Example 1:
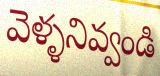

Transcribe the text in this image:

వెళ్ళనివ్వండి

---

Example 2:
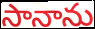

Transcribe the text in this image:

సానాను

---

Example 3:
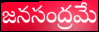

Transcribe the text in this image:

జనసంద్రమే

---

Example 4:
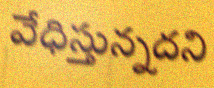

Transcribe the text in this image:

వేధిస్తున్నదని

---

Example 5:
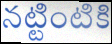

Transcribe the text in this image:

నట్టింటికి